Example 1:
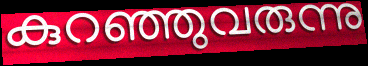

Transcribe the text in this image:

കുറഞ്ഞുവരുന്നു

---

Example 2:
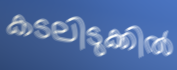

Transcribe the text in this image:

കടലിടുക്കിൽ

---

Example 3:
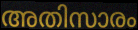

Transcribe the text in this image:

അതിസാരം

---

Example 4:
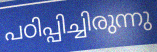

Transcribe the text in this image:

പഠിപ്പിച്ചിരുന്നു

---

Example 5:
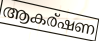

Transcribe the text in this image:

ആകര്ഷണ